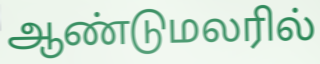
ஆண்டுமலரில்